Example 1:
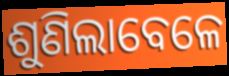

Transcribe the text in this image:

ଶୁଣିଲାବେଳେ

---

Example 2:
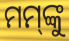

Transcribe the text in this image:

ମମ୍‌ଙ୍କୁ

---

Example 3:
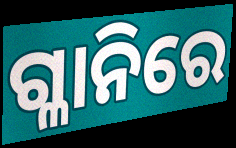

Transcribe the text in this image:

ଗ୍ଳାନିରେ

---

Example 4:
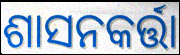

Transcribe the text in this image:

ଶାସନକର୍ତ୍ତା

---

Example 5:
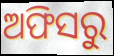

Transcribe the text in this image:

ଅଫିସରୁ